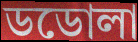
ডডোলা